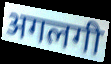
अगलगी